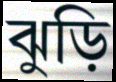
ঝুড়ি